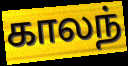
காலந்